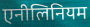
एनीलिनियम